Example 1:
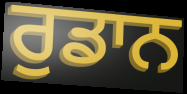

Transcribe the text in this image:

ਰੁਡਾਨ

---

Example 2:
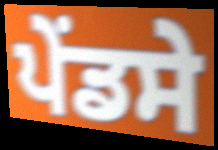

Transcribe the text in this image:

ਪੇਂਡਸੇ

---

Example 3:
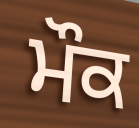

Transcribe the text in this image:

ਮੌਕ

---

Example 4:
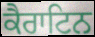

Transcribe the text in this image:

ਕੈਰਾਟਿਨ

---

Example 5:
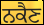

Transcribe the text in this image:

ਨਕੈਣ